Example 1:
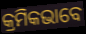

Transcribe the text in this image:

କ୍ରମିକଭାବେ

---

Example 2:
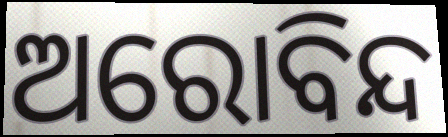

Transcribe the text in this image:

ଅରୋବିନ୍ଦ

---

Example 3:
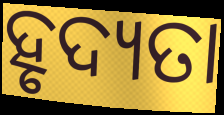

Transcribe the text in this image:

ହୃଦ୍ୟତା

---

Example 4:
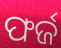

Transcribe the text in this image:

ଫର୍ଜ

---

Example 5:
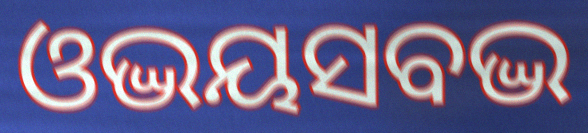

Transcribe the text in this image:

ଓଦ୍ଭୟସବଦ୍ଭ